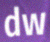
dw